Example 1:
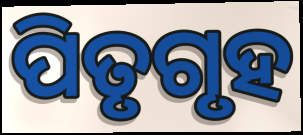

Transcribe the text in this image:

ପିତୃଗୃହ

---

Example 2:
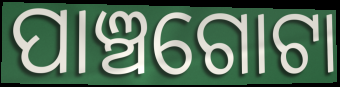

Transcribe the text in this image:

ପାଞ୍ଚଗୋଟା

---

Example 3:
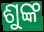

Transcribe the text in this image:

ଶୁଙ୍କ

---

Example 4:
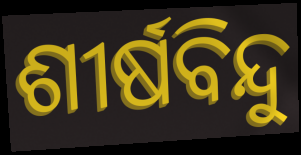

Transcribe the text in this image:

ଶୀର୍ଷବିନ୍ଦୁ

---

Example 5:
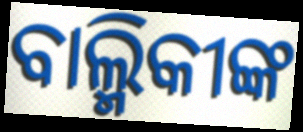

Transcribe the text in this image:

ବାଲ୍ମିକୀଙ୍କ